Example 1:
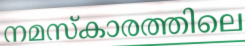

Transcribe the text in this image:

നമസ്കാരത്തിലെ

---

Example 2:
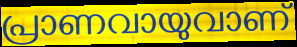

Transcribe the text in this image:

പ്രാണവായുവാണ്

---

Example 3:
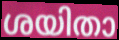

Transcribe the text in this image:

ശയിതാ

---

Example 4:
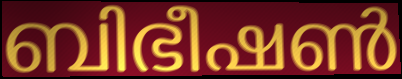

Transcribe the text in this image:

ബിഭീഷൺ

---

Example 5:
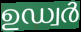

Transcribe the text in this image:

ഉഡ്വർ